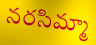
నరసిమ్మా